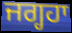
ਜਗ੍ਹਹਾ